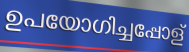
ഉപയോഗിച്ചപ്പോള്